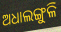
ଅଧାଲଙ୍ଗୁଳି